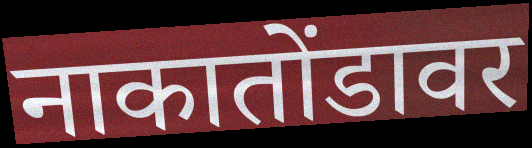
नाकातोंडावर